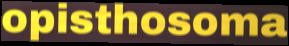
opisthosoma